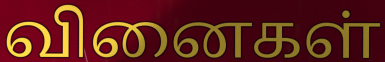
வினைகள்